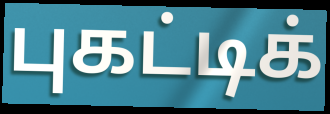
புகட்டிக்